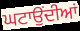
ਘਟਾਉਂਦੀਆਂ